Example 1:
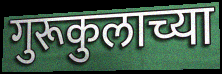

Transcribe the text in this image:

गुरूकुलाच्या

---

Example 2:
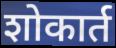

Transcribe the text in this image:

शोकार्त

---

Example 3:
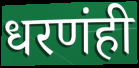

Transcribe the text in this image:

धरणंही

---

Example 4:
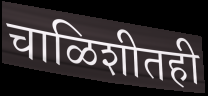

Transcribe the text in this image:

चाळिशीतही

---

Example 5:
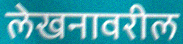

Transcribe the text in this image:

लेखनावरील